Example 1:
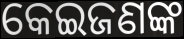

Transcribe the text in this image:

କେଇଜଣଙ୍କ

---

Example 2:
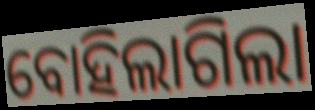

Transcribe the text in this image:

ବୋହିଲାଗିଲା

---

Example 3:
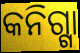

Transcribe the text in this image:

କନିଗ୍ଗା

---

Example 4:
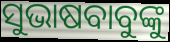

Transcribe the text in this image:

ସୁଭାଷବାବୁଙ୍କୁ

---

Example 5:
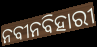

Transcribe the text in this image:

ନବୀନବିହାରୀ